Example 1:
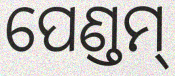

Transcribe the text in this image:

ପେଣ୍ଡମ୍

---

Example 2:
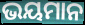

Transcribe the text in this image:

ଭୟମାନ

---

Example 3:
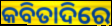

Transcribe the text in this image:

କବିତାଦିରେ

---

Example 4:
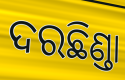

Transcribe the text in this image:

ଦରଛିଣ୍ଡା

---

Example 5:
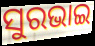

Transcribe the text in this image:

ସୁରଭାଇ